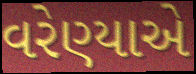
વરેણ્યાએ